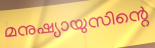
മനുഷ്യായുസിന്റെ